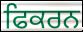
ਫਿਕਰਨ